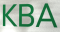
KBA